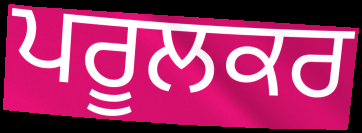
ਪਰੂਲਕਰ